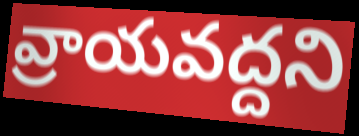
వ్రాయవద్దని